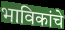
भाविकांचे